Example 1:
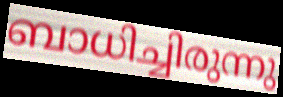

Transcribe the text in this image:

ബാധിച്ചിരുന്നു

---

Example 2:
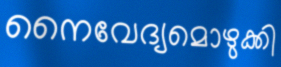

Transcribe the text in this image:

നൈവേദ്യമൊഴുക്കി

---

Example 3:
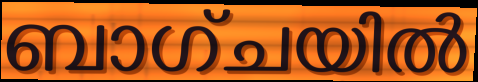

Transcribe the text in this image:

ബാഗ്ചയിൽ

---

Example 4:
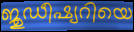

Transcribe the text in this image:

ജുഡീഷ്യറിയെ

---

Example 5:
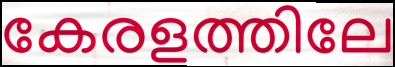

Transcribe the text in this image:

കേരളത്തിലേ